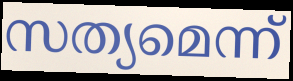
സത്യമെന്ന്